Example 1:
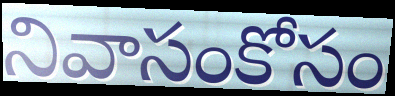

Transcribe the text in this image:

నివాసంకోసం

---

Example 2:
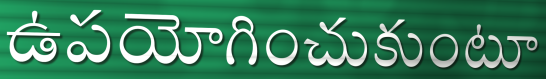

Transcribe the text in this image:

ఉపయోగించుకుంటూ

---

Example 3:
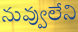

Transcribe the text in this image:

నువ్వులేని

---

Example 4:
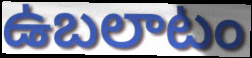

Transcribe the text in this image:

ఉబలాటం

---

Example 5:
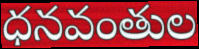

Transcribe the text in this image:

ధనవంతుల